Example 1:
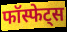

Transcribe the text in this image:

फॉस्फेट्स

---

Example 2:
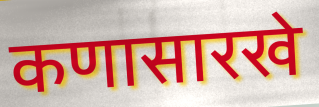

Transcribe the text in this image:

कणासारखे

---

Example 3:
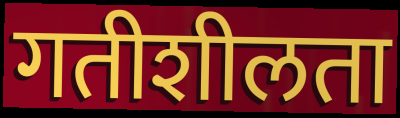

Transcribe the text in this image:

गतीशीलता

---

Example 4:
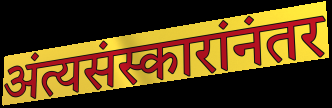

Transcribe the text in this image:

अंत्यसंस्कारांनंतर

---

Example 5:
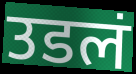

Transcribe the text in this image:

उडलं